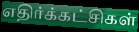
எதிர்க்கட்சிகள்